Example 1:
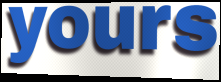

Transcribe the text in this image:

yours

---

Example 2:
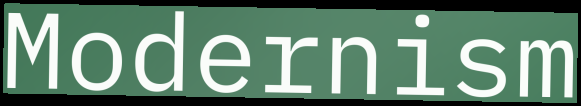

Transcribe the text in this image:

Modernism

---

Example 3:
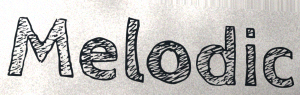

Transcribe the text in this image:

Melodic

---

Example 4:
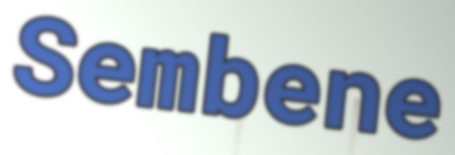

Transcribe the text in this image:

Sembene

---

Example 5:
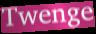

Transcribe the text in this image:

Twenge